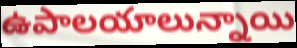
ఉపాలయాలున్నాయి